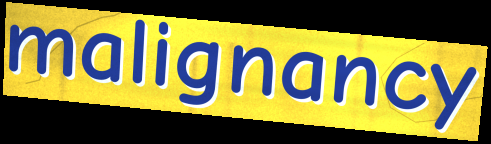
malignancy